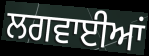
ਲਗਵਾਈਆਂ